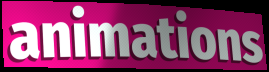
animations